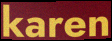
karen